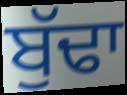
ਬੁੱਢਾ